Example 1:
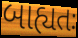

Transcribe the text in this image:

બાહ્યતઃ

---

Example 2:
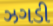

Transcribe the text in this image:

ઝગડી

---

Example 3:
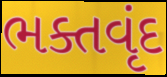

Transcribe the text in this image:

ભક્તવૃંદ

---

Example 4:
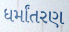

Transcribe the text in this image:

ધર્માંતરણ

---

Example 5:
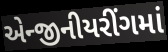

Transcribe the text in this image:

એન્જીનીયરીંગમાં